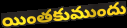
యింతకుముందు